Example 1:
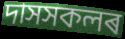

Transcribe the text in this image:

দাসসকলৰ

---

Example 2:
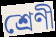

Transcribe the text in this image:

শ্ৰেণী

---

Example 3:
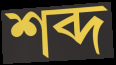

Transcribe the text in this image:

শব্দ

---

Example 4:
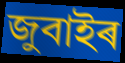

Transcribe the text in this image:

জুবাইৰ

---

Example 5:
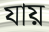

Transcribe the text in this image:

যায়